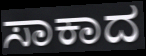
ಸಾಕಾದ